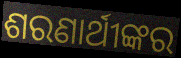
ଶରଣାର୍ଥୀଙ୍କର